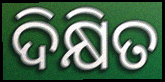
ଦିକ୍ଷିତ